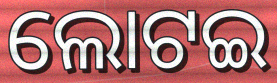
ଲୋଟଇ